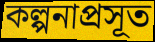
কল্পনাপ্ৰসূত